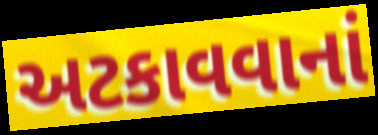
અટકાવવાનાં